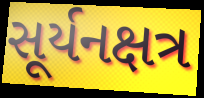
સૂર્યનક્ષત્ર